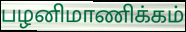
பழனிமாணிக்கம்